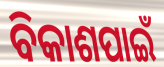
ବିକାଶପାଇଁ